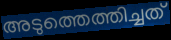
അടുത്തെത്തിച്ചത്